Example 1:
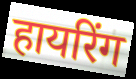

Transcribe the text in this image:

हायरिंग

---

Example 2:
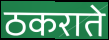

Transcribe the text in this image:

ठकराते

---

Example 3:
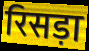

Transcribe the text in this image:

रिसड़ा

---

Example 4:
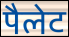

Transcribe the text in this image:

पैलेट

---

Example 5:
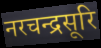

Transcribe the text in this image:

नरचन्द्रसूरि